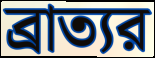
ব্রাত্যর